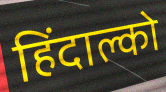
हिंदाल्को